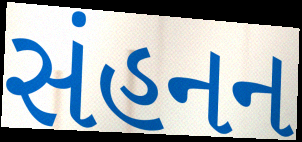
સંહનન